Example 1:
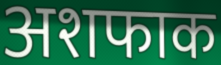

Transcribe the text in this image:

अशफाक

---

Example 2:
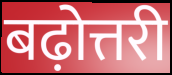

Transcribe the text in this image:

बढ़ोत्तरी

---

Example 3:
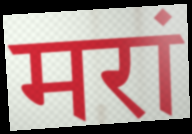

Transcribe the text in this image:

मरां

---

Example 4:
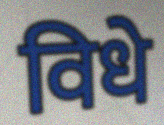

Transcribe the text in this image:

विधे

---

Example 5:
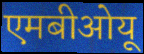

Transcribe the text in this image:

एमबीओयू